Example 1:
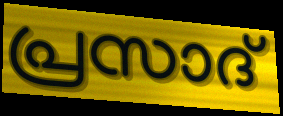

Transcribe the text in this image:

പ്രസാദ്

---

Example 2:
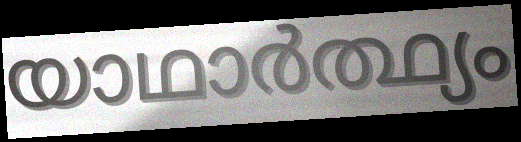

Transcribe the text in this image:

യാഥാർത്ഥ്യം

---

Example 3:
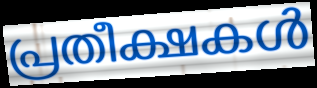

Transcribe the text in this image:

പ്രതീക്ഷകൾ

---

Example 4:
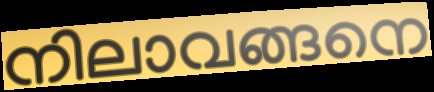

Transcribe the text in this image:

നിലാവങ്ങനെ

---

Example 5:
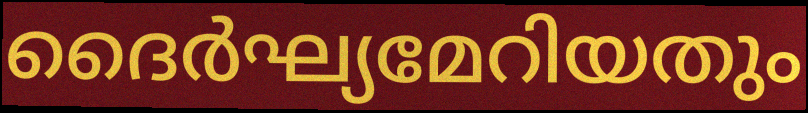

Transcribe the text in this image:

ദൈർഘ്യമേറിയതും